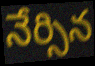
నేర్సిన